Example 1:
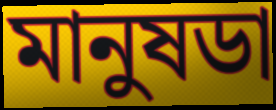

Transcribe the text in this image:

মানুষডা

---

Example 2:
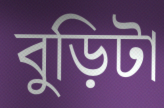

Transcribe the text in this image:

বুড়িটা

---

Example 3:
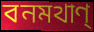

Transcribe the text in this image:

বনমথাণ্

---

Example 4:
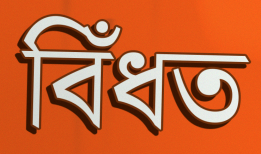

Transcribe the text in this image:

বিঁধত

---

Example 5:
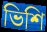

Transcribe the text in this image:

ভিশি